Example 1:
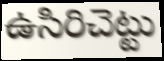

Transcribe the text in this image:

ఉసిరిచెట్టు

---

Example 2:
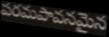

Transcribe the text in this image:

పరమపావనమైన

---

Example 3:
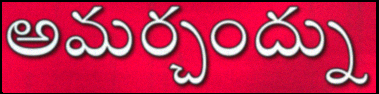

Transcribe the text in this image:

అమర్చంద్ను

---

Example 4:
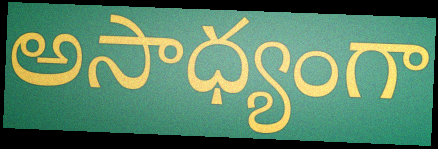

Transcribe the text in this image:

అసాధ్యంగా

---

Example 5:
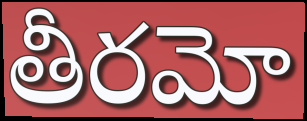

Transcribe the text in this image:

తీరమో